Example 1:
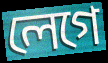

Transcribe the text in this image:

লেগে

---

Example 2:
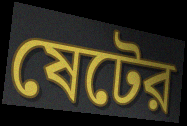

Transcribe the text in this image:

ষেটের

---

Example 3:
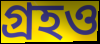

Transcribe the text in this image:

গ্রহও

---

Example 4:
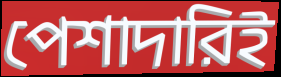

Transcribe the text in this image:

পেশাদারিই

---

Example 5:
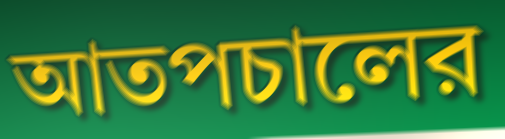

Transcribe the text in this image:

আতপচালের